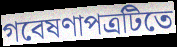
গবেষণাপত্রটিতে